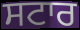
ਸਟਾਰ